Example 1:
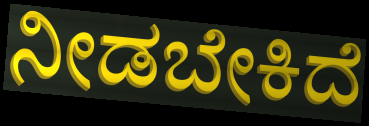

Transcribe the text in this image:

ನೀಡಬೇಕಿದೆ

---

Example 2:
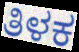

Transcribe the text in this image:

ತಿಳಕ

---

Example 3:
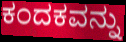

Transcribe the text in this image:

ಕಂದಕವನ್ನು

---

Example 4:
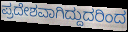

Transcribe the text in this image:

ಪ್ರದೇಶವಾಗಿದ್ದುದರಿಂದ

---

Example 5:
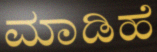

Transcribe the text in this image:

ಮಾಡಿಹೆ